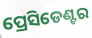
ପ୍ରେସିଡେଣ୍ଟର